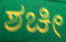
ಶಚೀ